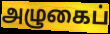
அழுகைப்